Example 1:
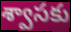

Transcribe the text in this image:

శ్వాసకు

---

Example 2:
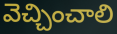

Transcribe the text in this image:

వెచ్చించాలి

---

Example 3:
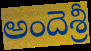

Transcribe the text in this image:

అందెశ్రీ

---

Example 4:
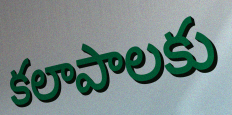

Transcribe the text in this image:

కలాపాలకు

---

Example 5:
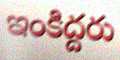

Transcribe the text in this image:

ఇంకిద్దరు